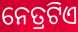
ନେତ୍ରଟିଏ